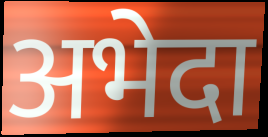
अभेदा